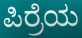
ಪಿರ್ರೆಯ